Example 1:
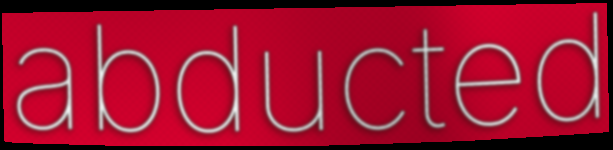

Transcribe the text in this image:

abducted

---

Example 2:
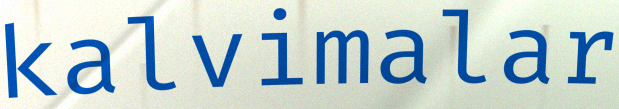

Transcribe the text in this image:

kalvimalar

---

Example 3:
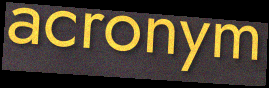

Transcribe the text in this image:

acronym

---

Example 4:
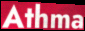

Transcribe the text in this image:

Athma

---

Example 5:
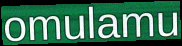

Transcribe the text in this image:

omulamu